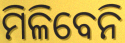
ମିଳିବେନି